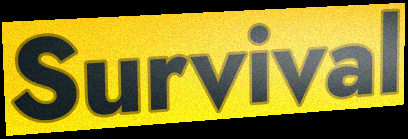
Survival